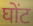
घोंट